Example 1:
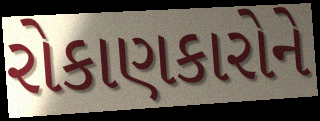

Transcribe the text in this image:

રોકાણકારોને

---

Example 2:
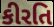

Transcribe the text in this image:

કીરતિ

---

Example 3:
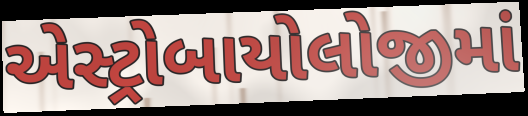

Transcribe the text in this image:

એસ્ટ્રોબાયોલોજીમાં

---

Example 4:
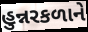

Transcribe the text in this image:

હુન્નરકળાને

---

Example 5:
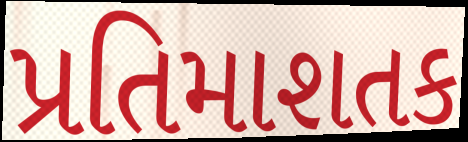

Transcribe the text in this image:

પ્રતિમાશતક